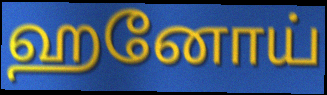
ஹனோய்